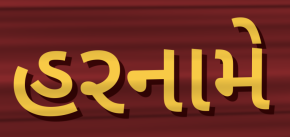
હરનામે